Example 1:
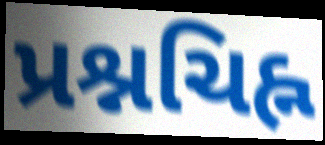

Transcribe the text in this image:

પ્રશ્નચિહ્ન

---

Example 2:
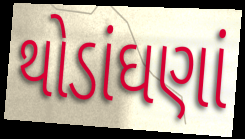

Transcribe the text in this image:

થોડાંઘણાં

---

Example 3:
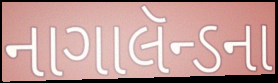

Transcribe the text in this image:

નાગાલૅન્ડના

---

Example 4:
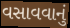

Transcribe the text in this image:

વસાવવાનું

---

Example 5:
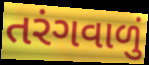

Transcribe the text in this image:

તરંગવાળું